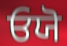
ਓਯੋ